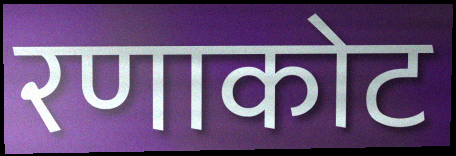
रणाकोट